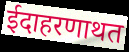
ईदाहरणाथत